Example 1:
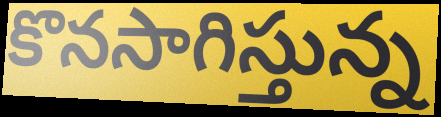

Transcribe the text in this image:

కొనసాగిస్తున్న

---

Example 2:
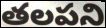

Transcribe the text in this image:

తలపని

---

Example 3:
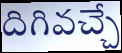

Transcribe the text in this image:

దిగివచ్చే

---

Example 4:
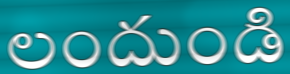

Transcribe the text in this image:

లందుండి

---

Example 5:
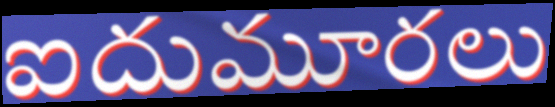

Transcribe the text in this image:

ఐదుమూరలు